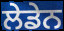
ਲੇਡੇਨ